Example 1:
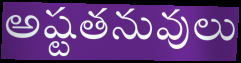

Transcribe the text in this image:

అష్టతనువులు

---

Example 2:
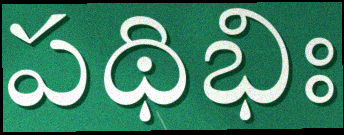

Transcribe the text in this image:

పథిభిః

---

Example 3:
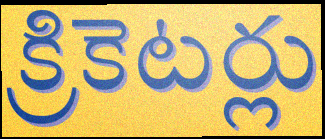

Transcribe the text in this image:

క్రికెటర్లు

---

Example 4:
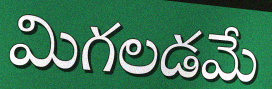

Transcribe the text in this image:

మిగలడమే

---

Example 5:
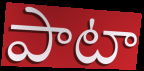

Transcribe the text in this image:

పాటా